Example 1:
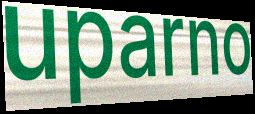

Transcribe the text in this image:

uparno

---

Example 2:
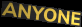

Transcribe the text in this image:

ANYONE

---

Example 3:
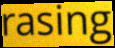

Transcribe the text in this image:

rasing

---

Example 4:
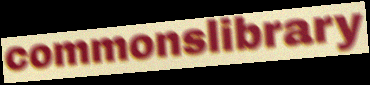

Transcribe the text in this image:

commonslibrary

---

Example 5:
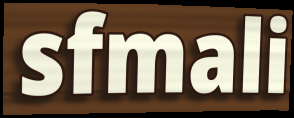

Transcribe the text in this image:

sfmali